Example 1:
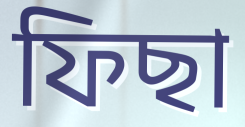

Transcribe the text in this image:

ফিছা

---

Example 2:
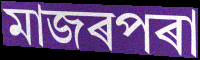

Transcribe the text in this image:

মাজৰপৰা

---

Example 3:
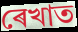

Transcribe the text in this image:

ৰেখাত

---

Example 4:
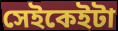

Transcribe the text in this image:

সেইকেইটা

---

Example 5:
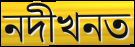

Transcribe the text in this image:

নদীখনত